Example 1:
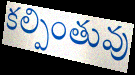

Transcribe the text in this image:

కల్పింతువు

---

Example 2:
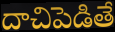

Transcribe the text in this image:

దాచిపెడితే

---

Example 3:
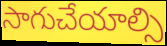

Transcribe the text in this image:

సాగుచేయాల్సి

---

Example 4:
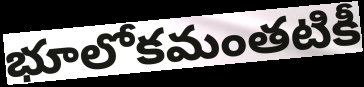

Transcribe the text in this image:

భూలోకమంతటికీ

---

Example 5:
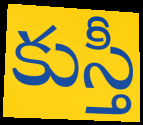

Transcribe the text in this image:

కుస్తీ